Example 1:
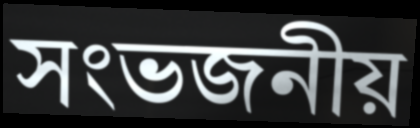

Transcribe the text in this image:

সংভজনীয়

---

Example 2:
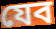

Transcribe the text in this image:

যেব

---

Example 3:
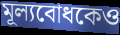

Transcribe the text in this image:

মূল্যবোধকেও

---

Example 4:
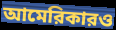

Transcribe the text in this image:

আমেরিকারও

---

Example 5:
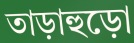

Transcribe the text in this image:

তাড়াহুড়ো